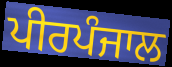
ਪੀਰਪੰਜਾਲ